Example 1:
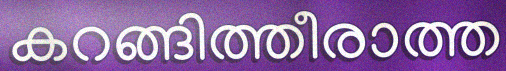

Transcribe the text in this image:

കറങ്ങിത്തീരാത്ത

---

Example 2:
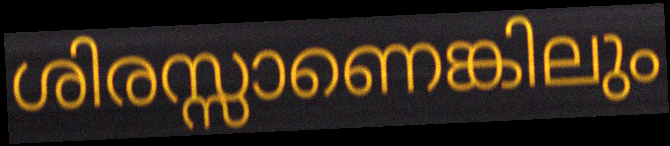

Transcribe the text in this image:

ശിരസ്സാണെങ്കിലും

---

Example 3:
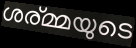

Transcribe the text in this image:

ശര്മ്മയുടെ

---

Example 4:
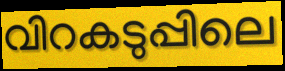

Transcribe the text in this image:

വിറകടുപ്പിലെ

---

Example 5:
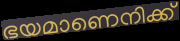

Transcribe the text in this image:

ഭയമാണെനിക്ക്